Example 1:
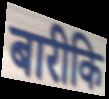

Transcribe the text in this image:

बारीकि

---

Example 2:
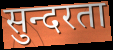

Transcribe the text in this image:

सुन्दरता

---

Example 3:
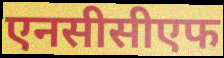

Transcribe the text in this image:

एनसीसीएफ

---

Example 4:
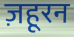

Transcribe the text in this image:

ज़हूरन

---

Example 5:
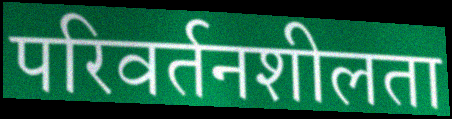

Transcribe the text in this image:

परिवर्तनशीलता